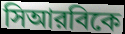
সিআরবিকে